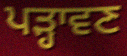
ਪੜ੍ਹਾਵਣ